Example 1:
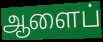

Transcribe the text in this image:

ஆளைப்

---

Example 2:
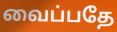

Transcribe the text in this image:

வைப்பதே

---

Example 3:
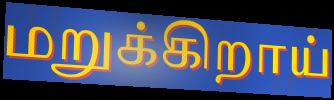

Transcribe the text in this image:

மறுக்கிறாய்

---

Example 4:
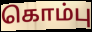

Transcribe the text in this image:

கொம்பு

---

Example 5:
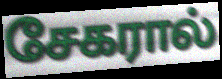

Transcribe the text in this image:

சேகரால்